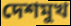
দেশমুখ